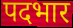
पदभार